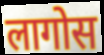
लागोस